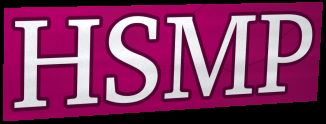
HSMP